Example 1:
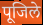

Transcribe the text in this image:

पूजिले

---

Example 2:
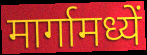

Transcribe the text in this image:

मार्गामध्यें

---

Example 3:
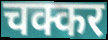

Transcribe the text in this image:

चक्कर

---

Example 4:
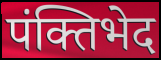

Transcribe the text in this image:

पंक्तिभेद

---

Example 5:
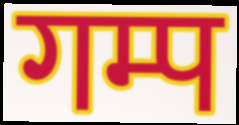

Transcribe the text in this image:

गम्प